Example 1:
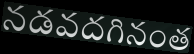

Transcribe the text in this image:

నడవదగినంత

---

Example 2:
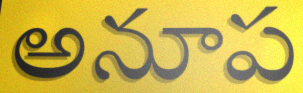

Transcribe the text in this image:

అనూప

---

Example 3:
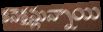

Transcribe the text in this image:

కనెక్షన్లున్నాయి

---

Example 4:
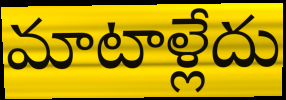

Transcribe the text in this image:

మాటాళ్లేదు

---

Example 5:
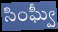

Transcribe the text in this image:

సింఘ్వీ